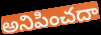
అనిపించదా